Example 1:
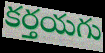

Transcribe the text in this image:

కర్తయగు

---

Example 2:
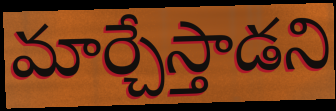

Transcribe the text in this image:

మార్చేస్తాడని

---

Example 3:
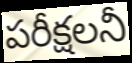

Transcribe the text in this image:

పరీక్షలనీ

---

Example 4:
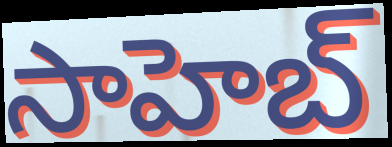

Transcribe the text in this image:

సాహెబ్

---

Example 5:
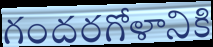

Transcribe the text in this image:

గందరగోళానికి